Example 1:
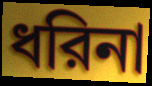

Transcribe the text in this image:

ধরিনা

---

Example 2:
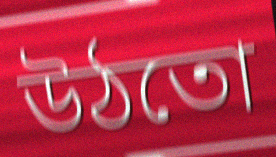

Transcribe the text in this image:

উঠতো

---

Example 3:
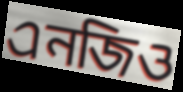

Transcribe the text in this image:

এনজিও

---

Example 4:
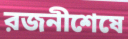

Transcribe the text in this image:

রজনীশেষে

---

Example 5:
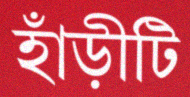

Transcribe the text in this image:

হাঁড়ীটি